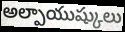
అల్పాయుష్కులు